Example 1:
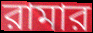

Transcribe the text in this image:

রামার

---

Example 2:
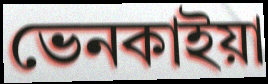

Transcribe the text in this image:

ভেনকাইয়া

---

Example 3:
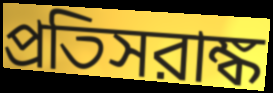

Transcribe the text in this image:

প্রতিসরাঙ্ক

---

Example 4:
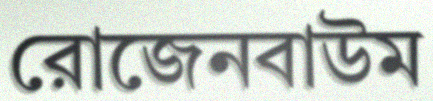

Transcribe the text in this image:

রোজেনবাউম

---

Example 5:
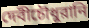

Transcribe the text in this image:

দেবীচৌধুরানি